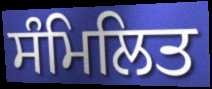
ਸੰਮਿਲਿਤ